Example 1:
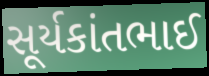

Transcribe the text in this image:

સૂર્યકાંતભાઈ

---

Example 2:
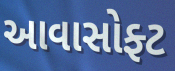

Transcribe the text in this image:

આવાસોફ્ટ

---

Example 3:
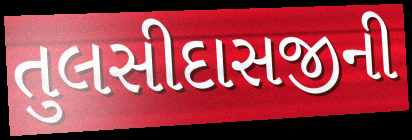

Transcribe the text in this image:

તુલસીદાસજીની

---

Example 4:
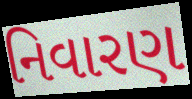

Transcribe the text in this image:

નિવારણ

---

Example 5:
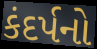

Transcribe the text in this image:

કંદર્પનો